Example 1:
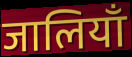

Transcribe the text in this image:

जालियाँ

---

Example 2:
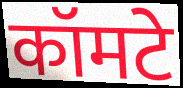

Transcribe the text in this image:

कॉमटे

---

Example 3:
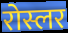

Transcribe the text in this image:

रोस्लर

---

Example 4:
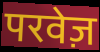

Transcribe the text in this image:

परवेज़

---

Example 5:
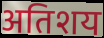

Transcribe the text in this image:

अतिशय